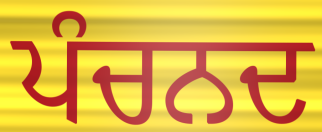
ਪੰਚਨਦ